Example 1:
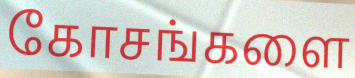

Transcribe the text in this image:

கோசங்களை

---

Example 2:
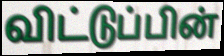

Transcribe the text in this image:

விட்டுப்பின்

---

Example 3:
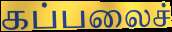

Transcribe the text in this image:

கப்பலைச்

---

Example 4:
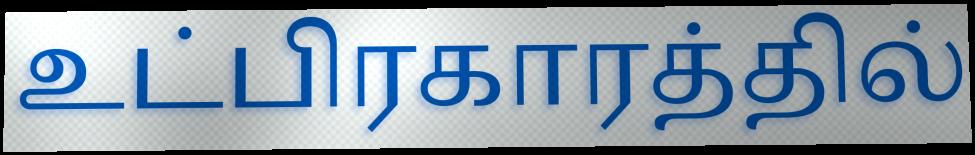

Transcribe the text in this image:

உட்பிரகாரத்தில்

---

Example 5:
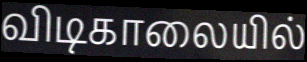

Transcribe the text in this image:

விடிகாலையில்